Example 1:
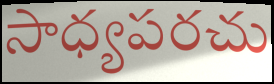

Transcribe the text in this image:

సాధ్యపరచు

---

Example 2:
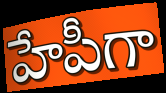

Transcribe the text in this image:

హేపీగా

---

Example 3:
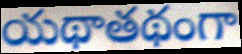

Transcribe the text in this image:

యథాతథంగా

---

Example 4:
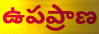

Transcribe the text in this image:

ఉపప్రాణ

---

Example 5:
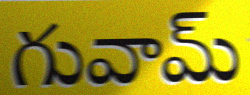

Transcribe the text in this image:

గువామ్